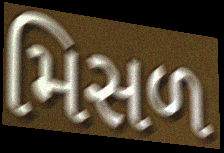
મિસળ